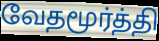
வேதமூர்த்தி